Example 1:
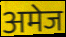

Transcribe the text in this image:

अमेज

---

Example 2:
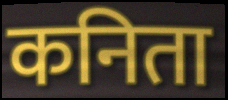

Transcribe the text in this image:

कनिता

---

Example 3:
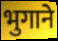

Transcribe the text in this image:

भुगाने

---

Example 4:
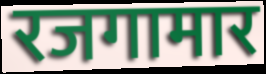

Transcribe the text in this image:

रजगामार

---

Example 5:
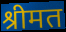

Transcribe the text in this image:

श्रीमत